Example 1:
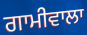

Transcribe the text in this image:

ਗਾਮੀਵਾਲਾ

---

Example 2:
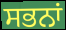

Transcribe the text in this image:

ਸਭਨਾਂ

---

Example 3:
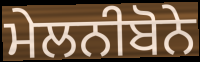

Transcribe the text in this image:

ਮੇਲਨੀਬੋਨੇ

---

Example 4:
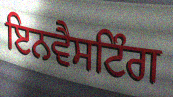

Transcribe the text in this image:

ਇਨਵੈਸਟਿੰਗ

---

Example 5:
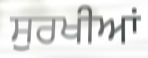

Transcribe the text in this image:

ਸੁਰਖੀਆਂ